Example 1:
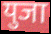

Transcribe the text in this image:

युजा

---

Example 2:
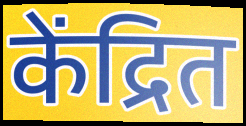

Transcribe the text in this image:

केंद्रित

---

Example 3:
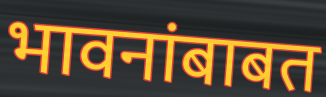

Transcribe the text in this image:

भावनांबाबत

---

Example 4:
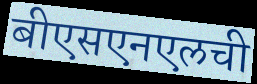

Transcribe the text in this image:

बीएसएनएलची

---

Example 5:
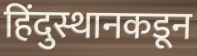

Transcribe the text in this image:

हिंदुस्थानकडून